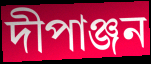
দীপাঞ্জন